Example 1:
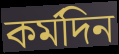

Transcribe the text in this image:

কৰ্মদিন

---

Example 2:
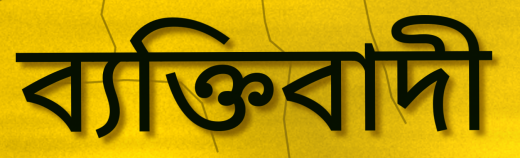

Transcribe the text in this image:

ব্যক্তিবাদী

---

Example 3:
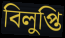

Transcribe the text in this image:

বিলুপ্তি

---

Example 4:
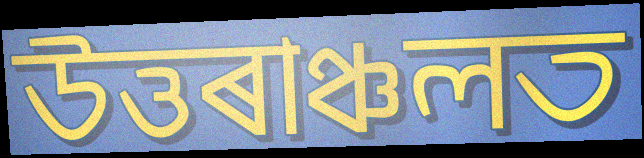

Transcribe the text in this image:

উত্তৰাঞ্চলত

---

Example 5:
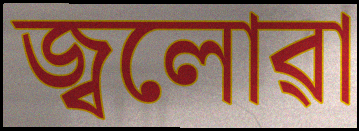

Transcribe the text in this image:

জ্বলোৱা